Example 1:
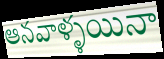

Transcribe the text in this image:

ఆనవాళ్ళయినా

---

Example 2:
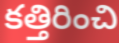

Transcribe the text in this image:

కత్తిరించి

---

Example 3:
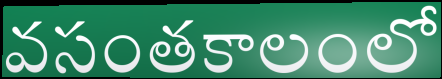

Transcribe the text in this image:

వసంతకాలంలో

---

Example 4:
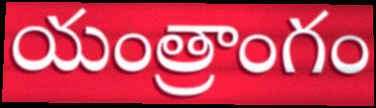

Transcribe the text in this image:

యంత్రాంగం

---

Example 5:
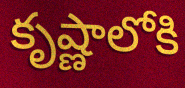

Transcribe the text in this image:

కృష్ణాలోకి